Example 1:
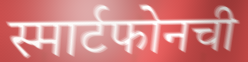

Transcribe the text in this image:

स्मार्टफोनची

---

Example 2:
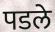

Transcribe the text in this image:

पडले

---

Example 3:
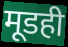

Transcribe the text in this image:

मूडही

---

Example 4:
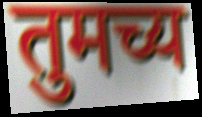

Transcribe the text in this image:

तुमच्य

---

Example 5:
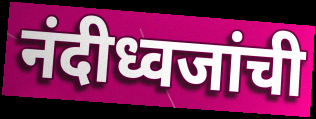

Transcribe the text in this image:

नंदीध्वजांची